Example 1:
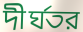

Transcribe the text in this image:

দীর্ঘতর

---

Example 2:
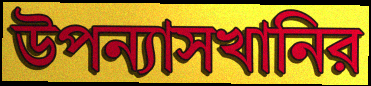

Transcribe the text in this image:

উপন্যাসখানির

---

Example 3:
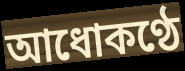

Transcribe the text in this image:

আধোকণ্ঠে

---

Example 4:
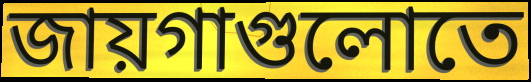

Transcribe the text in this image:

জায়গাগুলোতে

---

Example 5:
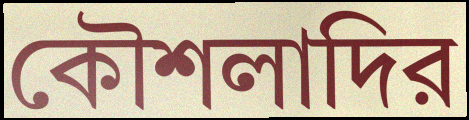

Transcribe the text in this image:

কৌশলাদির